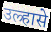
उल्हासे